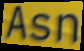
Asn